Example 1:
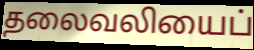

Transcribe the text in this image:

தலைவலியைப்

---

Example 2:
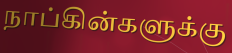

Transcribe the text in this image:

நாப்கின்களுக்கு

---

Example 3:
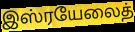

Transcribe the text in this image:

இஸ்ரயேலைத்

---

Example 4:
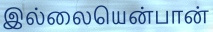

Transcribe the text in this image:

இல்லையென்பான்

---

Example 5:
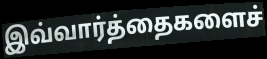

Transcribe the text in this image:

இவ்வார்த்தைகளைச்